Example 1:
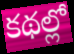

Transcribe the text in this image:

కథల్లో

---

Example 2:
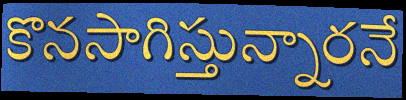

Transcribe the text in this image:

కొనసాగిస్తున్నారనే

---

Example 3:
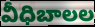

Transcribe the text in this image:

వీధిబాలల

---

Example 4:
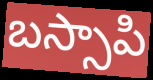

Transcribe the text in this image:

బస్సాపి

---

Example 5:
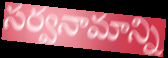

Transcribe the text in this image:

సర్వనామాన్ని